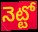
నెట్టో